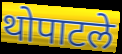
थोपाटले